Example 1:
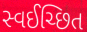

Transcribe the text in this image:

સ્વઈચ્છિત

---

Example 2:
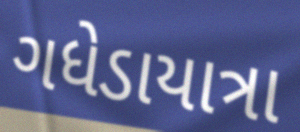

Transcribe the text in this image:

ગધેડાયાત્રા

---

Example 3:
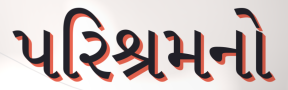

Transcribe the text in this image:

પરિશ્રમનો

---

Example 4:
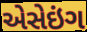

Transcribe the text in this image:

એસેઇંગ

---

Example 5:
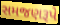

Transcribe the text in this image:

સમજણરૂપે